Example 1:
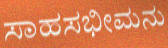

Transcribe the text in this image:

ಸಾಹಸಭೀಮನು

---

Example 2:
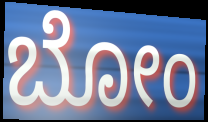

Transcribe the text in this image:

ಬೋಂ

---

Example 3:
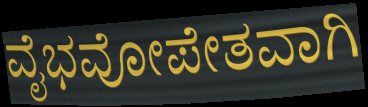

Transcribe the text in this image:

ವೈಭವೋಪೇತವಾಗಿ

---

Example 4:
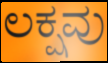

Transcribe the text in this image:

ಲಕ್ಷವು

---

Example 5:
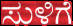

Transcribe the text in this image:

ಸುಳಿಗೆ